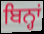
ਬਿਨ੍ਹਾਂ